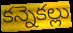
కన్నెకల్లు